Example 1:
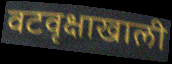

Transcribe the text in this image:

वटवृक्षाखाली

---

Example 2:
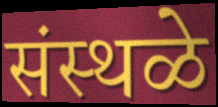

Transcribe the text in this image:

संस्थळे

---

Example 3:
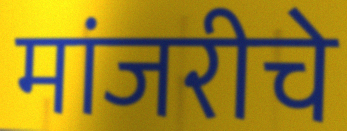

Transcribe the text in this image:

मांजरीचे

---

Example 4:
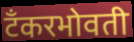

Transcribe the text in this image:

टँकरभोवती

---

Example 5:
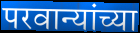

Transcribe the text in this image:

परवान्यांच्या